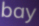
bay